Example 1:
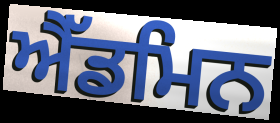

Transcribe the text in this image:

ਐੱਡਮਿਨ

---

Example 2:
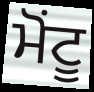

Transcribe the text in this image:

ਮੋਂਟੂ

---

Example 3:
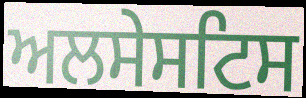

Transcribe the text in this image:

ਅਲਸੇਸਟਿਸ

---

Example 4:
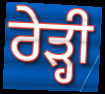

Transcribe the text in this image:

ਰੇੜ੍ਹੀ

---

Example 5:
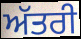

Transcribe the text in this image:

ਅੱਤਰੀ